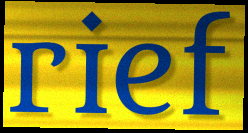
rief